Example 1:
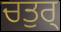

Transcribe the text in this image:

ਚਤੁਰ੍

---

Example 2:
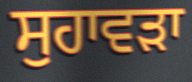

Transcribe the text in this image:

ਸੁਹਾਵੜਾ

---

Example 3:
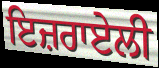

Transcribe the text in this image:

ਇਜ਼ਰਾਏਲੀ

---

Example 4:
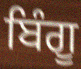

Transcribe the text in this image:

ਬਿੰਗੂ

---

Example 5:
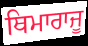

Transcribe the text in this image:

ਥਿਮਾਰਾਜੂ